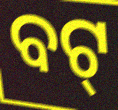
ବଟ୍